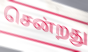
சென்றது